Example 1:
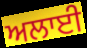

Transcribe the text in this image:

ਅਲਾਈ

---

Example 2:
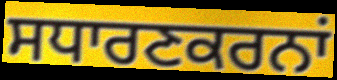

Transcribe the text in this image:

ਸਧਾਰਣਕਰਨਾਂ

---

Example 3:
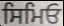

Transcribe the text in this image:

ਸਿਮਿਓ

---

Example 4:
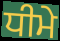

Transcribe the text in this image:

ਧੀਮੇ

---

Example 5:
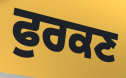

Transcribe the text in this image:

ਫੁਰਕਣ